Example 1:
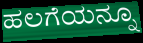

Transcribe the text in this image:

ಹಲಗೆಯನ್ನೂ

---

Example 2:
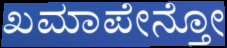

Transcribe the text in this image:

ಖಮಾಪೇನ್ತೋ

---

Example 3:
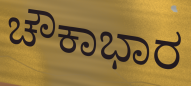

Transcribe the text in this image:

ಚೌಕಾಭಾರ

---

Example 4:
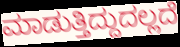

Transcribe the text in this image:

ಮಾಡುತ್ತಿದ್ದುದಲ್ಲದೆ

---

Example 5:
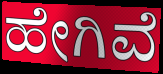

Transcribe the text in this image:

ಹೇಗಿವೆ